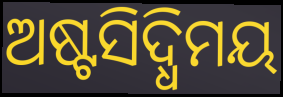
ଅଷ୍ଟସିଦ୍ଧିମୟ